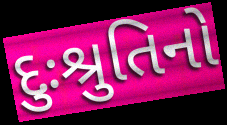
દુઃશ્રુતિનો